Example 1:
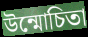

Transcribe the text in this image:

উন্মোচিতা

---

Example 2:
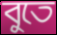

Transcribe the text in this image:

বুতে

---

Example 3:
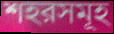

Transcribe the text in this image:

শহরসমূহ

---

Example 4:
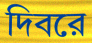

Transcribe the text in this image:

দিবরে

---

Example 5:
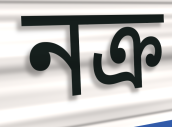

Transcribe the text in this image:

নক্র